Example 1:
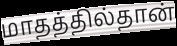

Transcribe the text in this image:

மாதத்தில்தான்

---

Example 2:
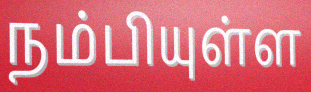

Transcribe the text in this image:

நம்பியுள்ள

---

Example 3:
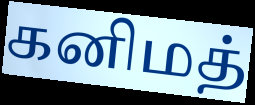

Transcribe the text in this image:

கனிமத்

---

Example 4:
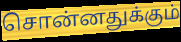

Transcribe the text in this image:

சொன்னதுக்கும்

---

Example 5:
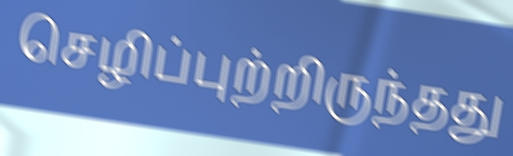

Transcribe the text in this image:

செழிப்புற்றிருந்தது